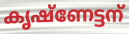
കൃഷ്ണേട്ടന്